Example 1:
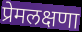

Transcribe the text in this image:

प्रेमलक्षणा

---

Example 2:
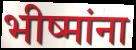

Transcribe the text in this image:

भीष्मांना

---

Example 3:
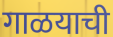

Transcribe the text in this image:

गाळयाची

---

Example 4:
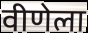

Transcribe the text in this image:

वीणेला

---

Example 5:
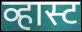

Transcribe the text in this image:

व्हास्ट